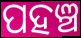
ପହଞ୍ଚ